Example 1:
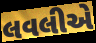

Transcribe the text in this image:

લવલીએ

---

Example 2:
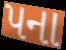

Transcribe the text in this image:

પના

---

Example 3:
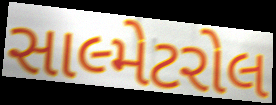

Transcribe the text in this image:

સાલ્મેટરોલ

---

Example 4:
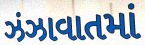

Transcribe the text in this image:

ઝંઝાવાતમાં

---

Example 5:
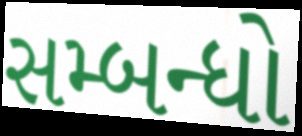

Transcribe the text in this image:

સમ્બન્ધો